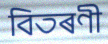
বিতৰণী